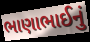
ભાણાભાઈનું